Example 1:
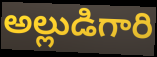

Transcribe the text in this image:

అల్లుడిగారి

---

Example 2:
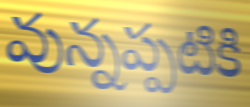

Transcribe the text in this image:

వున్నప్పటికి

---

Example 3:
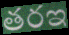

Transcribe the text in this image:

తరఇ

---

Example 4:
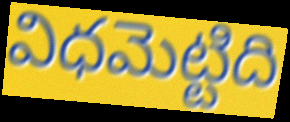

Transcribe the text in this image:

విధమెట్టిది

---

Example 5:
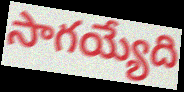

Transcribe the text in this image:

సాగయ్యేది